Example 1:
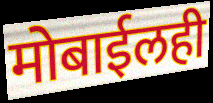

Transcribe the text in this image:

मोबाईलही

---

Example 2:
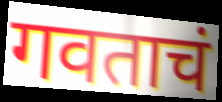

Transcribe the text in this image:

गवताचं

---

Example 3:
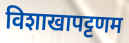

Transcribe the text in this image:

विशाखापट्टणम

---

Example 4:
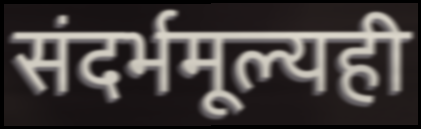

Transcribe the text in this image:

संदर्भमूल्यही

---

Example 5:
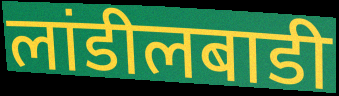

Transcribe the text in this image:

लांडीलबाडी